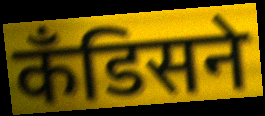
कँडिसने